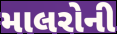
માલરોની